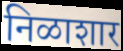
निळाशार